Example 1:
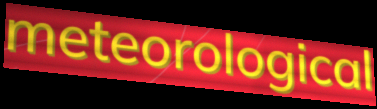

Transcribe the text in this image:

meteorological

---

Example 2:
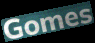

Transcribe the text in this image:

Gomes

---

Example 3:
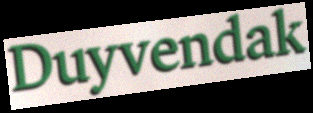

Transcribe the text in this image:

Duyvendak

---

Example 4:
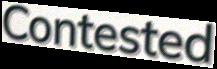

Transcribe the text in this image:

Contested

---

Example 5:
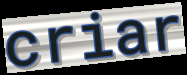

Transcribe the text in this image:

criar